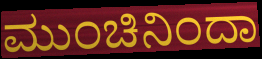
ಮುಂಚಿನಿಂದಾ